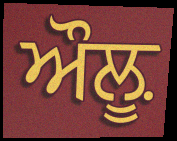
ਔਲ਼ੂ